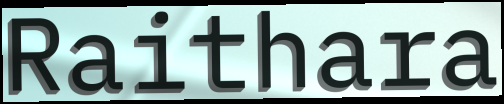
Raithara